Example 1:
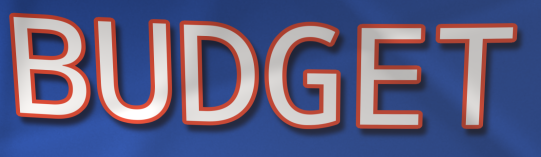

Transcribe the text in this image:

BUDGET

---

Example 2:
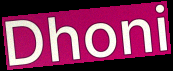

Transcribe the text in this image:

Dhoni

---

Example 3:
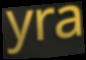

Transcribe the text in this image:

yra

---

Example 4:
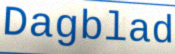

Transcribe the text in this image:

Dagblad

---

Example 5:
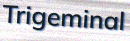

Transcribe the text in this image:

Trigeminal